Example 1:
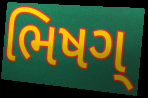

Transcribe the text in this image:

ભિષગ્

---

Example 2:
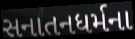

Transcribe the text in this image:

સનાતનધર્મના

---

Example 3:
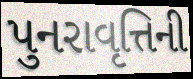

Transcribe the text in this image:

પુનરાવૃત્તિની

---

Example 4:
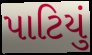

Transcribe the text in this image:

પાટિયું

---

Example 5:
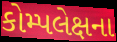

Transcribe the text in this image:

કોમ્પલેક્ષના